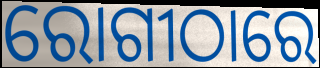
ରୋଗୀଠାରେ